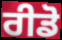
ਰੀਡੋ